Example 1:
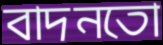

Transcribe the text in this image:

বাদনতো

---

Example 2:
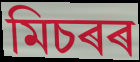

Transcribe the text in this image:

মিচৰৰ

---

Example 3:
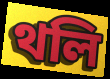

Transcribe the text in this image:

থলি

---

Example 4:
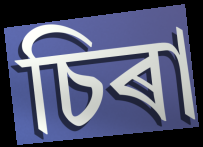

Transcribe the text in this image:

চিৰা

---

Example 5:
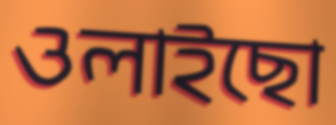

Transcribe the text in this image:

ওলাইছো